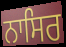
ਨਾਸਿਰ